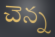
చెన్న